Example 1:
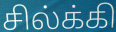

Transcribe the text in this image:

சில்க்கி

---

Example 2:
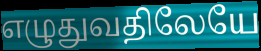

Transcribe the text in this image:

எழுதுவதிலேயே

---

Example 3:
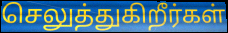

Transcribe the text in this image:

செலுத்துகிறீர்கள்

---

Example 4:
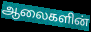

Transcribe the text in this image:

ஆலைகளின்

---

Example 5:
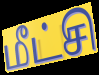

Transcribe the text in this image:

மீட்சி